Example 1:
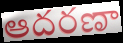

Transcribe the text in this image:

ఆదరణా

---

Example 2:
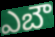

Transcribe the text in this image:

ఎబౌ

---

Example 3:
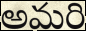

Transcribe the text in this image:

అమరి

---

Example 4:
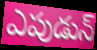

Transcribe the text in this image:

ఎపుడున్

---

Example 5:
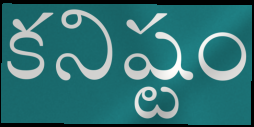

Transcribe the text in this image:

కనిష్టం